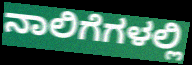
ನಾಲಿಗೆಗಳಲ್ಲಿ